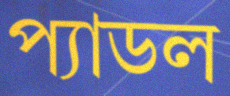
প্যাডল